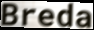
Breda